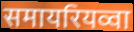
समायरियव्वा